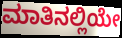
ಮಾತಿನಲ್ಲಿಯೇ